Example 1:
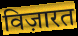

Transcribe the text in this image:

विज़ारत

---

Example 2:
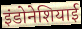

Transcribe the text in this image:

इंडोनेशियाई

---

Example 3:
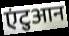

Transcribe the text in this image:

एंटुआन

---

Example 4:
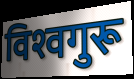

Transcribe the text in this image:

विश्वगुरू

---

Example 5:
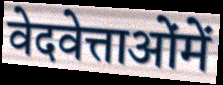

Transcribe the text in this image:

वेदवेत्ताओंमें